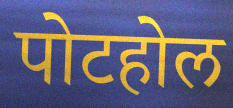
पोटहोल